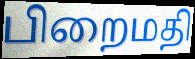
பிறைமதி